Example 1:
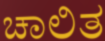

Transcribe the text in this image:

ಚಾಲಿತ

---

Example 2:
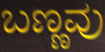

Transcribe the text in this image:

ಬಣ್ಣವು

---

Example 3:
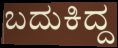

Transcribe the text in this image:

ಬದುಕಿದ್ದ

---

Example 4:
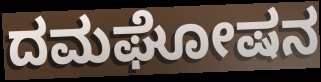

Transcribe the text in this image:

ದಮಘೋಷನ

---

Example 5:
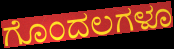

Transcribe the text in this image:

ಗೊಂದಲಗಳೂ